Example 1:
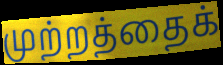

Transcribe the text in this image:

முற்றத்தைக்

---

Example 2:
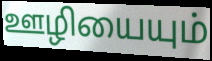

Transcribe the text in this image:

ஊழியையும்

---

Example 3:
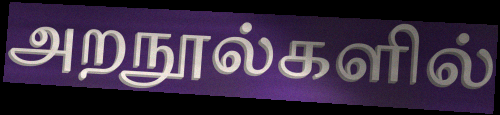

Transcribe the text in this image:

அறநூல்களில்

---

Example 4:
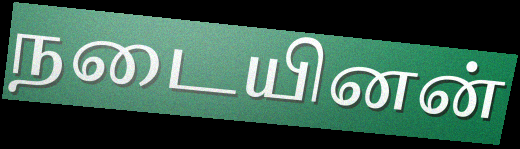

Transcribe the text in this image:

நடையினன்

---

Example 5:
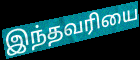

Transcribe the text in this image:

இந்தவரியை